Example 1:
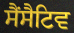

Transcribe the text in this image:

ਸੈਂਸੈਟਿਵ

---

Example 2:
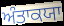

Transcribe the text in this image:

ਅੰਤਾਕਯਾ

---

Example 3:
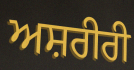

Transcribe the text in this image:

ਅਸ਼ਰੀਰੀ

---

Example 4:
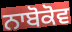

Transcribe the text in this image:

ਨਾਬੋਕੋਵ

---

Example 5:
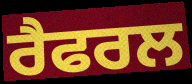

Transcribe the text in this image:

ਰੈਫਰਲ